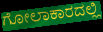
ಗೋಲಾಕಾರದಲ್ಲಿ